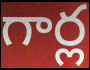
గార్ల